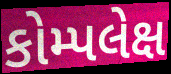
કોમ્પલેક્ષ